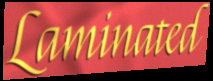
Laminated